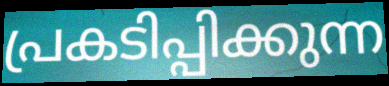
പ്രകടിപ്പിക്കുന്ന